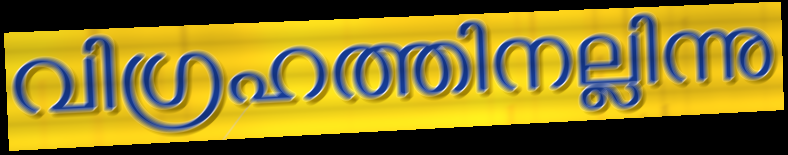
വിഗ്രഹത്തിനല്ലിന്നു